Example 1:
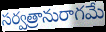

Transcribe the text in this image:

సర్వత్రానురాగమే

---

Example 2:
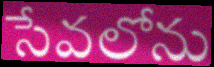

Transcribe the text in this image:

సేవలోను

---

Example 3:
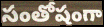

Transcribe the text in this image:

సంతోషంగా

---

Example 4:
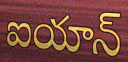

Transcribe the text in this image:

ఐయాన్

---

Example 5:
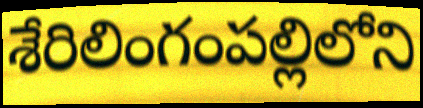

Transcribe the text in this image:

శేరిలింగంపల్లిలోని